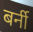
बर्नी